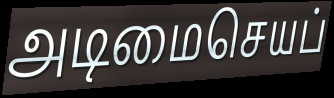
அடிமைசெயப்